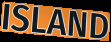
ISLAND